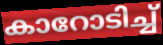
കാറോടിച്ച്